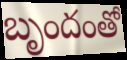
బృందంతో